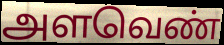
அளவெண்